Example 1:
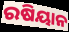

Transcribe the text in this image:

ରଷିୟାନ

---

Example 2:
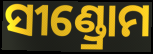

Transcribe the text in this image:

ସୀଣ୍ଡ୍ରୋମ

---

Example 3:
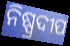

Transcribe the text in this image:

ନିଷ୍ପ୍ରଦୀପ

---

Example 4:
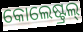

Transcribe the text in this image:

କୋଲେଷ୍ଟ୍ରଲ୍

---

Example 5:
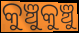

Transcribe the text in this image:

କୁଞ୍ଚୁକୁଞ୍ଚୁ